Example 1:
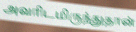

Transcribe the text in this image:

அவரிடமிருந்துதான்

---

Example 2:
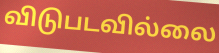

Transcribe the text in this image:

விடுபடவில்லை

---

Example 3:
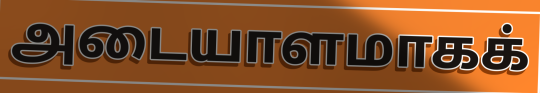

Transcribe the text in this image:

அடையாளமாகக்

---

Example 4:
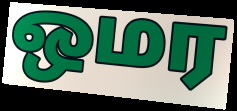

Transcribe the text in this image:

ஒமர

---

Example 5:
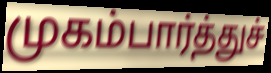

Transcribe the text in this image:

முகம்பார்த்துச்